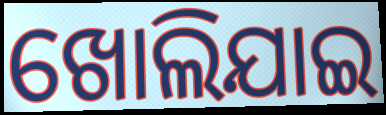
ଖୋଲିଯାଇ